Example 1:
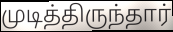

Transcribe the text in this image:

முடித்திருந்தார்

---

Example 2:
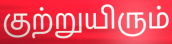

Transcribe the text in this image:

குற்றுயிரும்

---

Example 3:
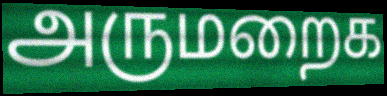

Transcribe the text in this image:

அருமறைக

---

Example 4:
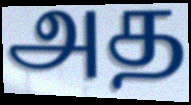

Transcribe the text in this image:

அத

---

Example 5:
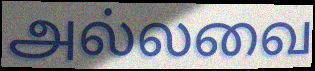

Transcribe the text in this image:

அல்லவை